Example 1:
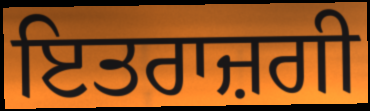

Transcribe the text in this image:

ਇਤਰਾਜ਼ਗੀ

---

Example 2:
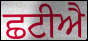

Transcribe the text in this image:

ਛਟੀਐ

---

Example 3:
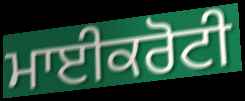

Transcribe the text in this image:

ਮਾਈਕਰੋਟੀ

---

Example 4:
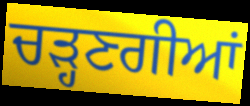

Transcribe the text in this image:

ਚੜ੍ਹਣਗੀਆਂ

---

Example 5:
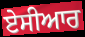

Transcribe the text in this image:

ਏਸੀਆਰ